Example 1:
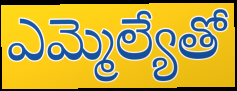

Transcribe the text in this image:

ఎమ్మెల్యేతో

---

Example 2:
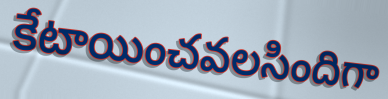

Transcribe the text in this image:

కేటాయించవలసిందిగా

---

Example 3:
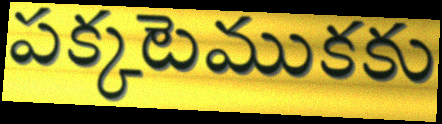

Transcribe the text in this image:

పక్కటెముకకు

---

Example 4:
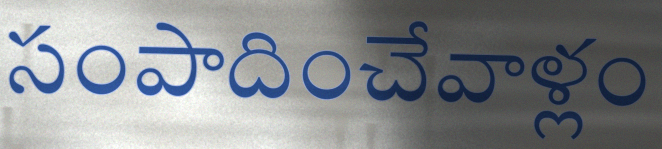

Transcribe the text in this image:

సంపాదించేవాళ్లం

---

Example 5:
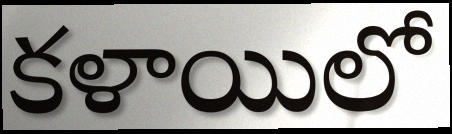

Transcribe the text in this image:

కళాయిలో